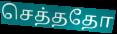
செத்ததோ